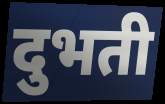
दुभती